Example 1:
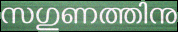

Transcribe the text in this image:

സഗുണത്തിനു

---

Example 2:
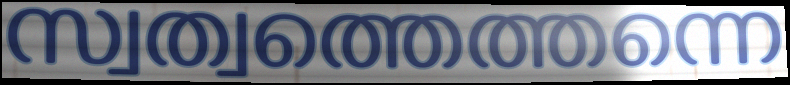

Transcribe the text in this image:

സ്വത്വത്തെത്തന്നെ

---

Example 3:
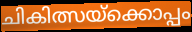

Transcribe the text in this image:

ചികിത്സയ്ക്കൊപ്പം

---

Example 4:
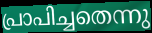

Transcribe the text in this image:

പ്രാപിച്ചതെന്നു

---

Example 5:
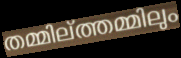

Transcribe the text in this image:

തമ്മില്ത്തമ്മിലും